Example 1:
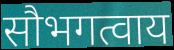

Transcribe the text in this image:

सौभगत्वाय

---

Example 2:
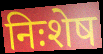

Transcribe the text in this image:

निःशेष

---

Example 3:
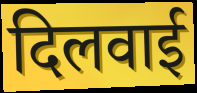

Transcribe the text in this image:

दिलवाई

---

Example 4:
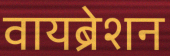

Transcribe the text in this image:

वायब्रेशन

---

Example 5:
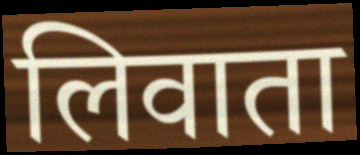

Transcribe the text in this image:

लिवाता